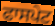
ਫਾਸਪੇਟ